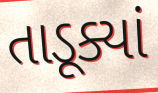
તાડૂક્યાં